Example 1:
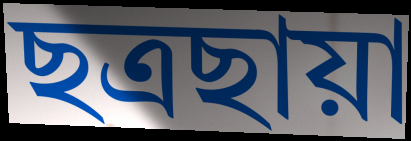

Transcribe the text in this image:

ছত্রছায়া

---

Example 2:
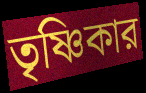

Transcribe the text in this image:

তৃষ্ণিকার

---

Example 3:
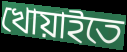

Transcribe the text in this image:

খোয়াইতে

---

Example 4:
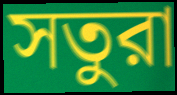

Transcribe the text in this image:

সতুরা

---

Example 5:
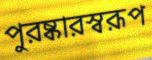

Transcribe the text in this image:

পুরষ্কারস্বরূপ